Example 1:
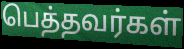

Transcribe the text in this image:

பெத்தவர்கள்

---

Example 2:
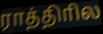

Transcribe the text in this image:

ராத்திரில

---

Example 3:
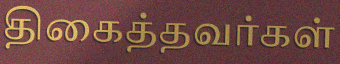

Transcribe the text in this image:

திகைத்தவர்கள்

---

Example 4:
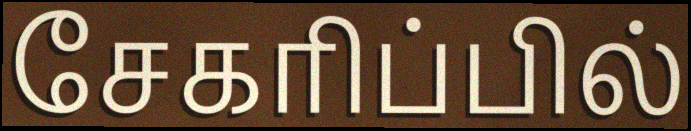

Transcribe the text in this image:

சேகரிப்பில்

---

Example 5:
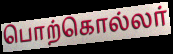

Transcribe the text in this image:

பொற்கொல்லர்